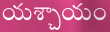
యశ్చాయం